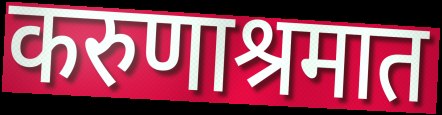
करुणाश्रमात